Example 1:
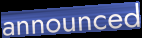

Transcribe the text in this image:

announced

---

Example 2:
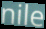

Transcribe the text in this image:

nile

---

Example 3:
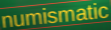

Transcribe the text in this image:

numismatic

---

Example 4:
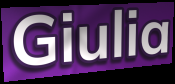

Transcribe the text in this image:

Giulia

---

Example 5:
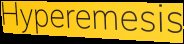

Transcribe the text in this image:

Hyperemesis